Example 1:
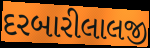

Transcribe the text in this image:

દરબારીલાલજી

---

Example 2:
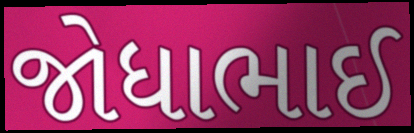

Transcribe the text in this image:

જોધાભાઈ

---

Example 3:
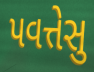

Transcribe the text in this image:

પવત્તેસુ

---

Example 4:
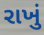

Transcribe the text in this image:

રાખું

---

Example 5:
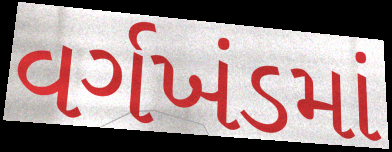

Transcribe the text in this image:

વર્ગખંડમાં